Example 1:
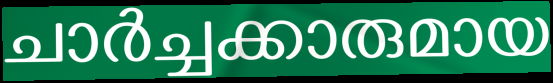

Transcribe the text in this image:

ചാർച്ചക്കാരുമായ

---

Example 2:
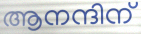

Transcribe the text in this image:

ആനന്ദിന്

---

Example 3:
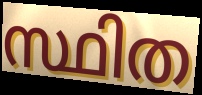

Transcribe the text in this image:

സ്ഥിത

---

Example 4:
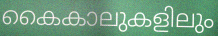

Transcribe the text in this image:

കൈകാലുകളിലും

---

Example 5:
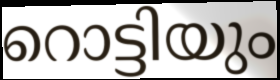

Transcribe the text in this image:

റൊട്ടിയും